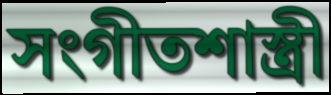
সংগীতশাস্ত্রী